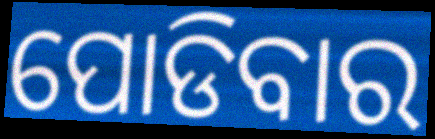
ପୋଡିବାର